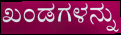
ಖಂಡಗಳನ್ನು